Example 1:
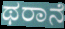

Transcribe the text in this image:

ಥರಾನೆ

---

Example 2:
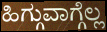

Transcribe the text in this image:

ಹಿಗ್ಗುವಾಗ್ಗೆಲ್ಲ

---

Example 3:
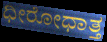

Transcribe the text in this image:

ಧೀರೋಧಾತ್ತ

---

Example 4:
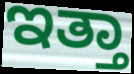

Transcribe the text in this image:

ಇತ್ತಾ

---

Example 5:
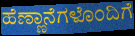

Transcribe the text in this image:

ಹೆಣ್ಣಾನೆಗಳೊಂದಿಗೆ